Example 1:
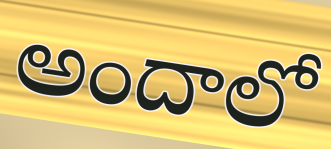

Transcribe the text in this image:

అందాలో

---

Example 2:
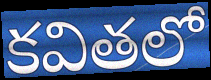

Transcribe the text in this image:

కవితలో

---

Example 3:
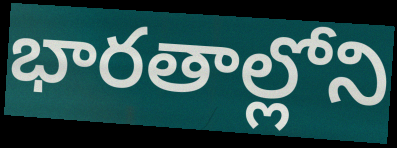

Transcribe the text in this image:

భారతాల్లోని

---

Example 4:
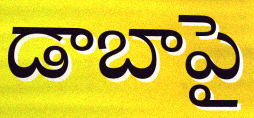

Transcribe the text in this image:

డాబాపై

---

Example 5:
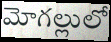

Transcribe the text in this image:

మోగల్లులో